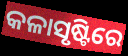
କଳାସୃଷ୍ଟିରେ